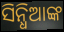
ସିନ୍ଧିଆଙ୍କ